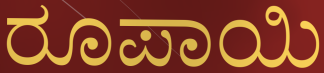
ರೂಪಾಯಿ